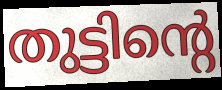
തുട്ടിന്റെ